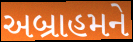
અબ્રાહમને